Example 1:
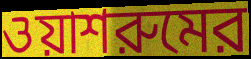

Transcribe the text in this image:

ওয়াশরুমের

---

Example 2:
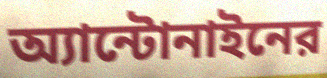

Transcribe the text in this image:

অ্যান্টোনাইনের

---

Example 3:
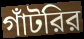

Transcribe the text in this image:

গাঁটরির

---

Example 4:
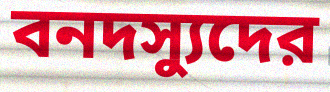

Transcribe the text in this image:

বনদস্যুদের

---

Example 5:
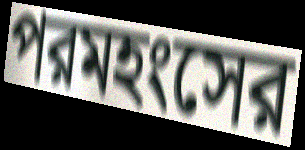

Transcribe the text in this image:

পরমহংসের